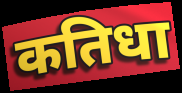
कतिधा